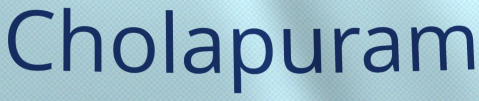
Cholapuram